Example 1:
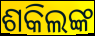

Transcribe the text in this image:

ଶକିଲଙ୍କ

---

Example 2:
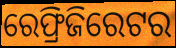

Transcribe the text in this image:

ରେଫ୍ରିଜିରେଟର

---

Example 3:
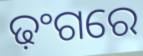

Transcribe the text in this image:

ଢ଼ଂଗରେ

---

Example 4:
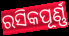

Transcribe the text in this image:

ରସିକପୂର୍ଣ୍ଣ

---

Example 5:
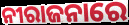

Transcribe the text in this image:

ନୀରାଜନାରେ